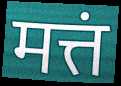
मत्तं